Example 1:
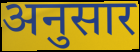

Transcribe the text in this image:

अनुसार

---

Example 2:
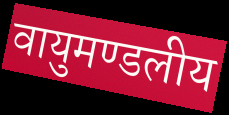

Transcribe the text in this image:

वायुमण्डलीय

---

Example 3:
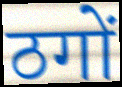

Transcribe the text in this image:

ठगों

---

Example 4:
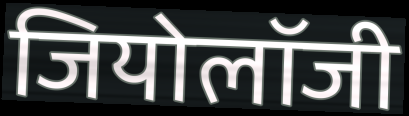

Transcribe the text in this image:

जियोलॉजी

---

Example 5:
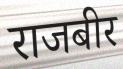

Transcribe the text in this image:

राजबीर